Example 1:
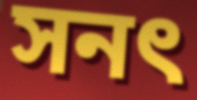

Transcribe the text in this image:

সনৎ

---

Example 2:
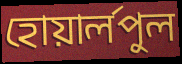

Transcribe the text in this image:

হোয়ার্লপুল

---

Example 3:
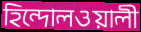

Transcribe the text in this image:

হিন্দোলওয়ালী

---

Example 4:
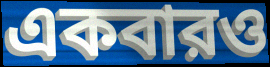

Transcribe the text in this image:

একবারও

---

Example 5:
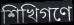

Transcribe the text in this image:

শিখিগণে